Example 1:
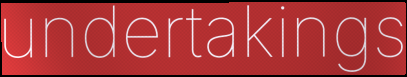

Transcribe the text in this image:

undertakings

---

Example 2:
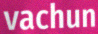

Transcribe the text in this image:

vachun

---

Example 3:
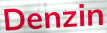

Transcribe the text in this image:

Denzin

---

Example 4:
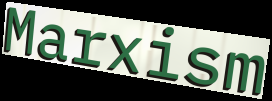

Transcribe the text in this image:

Marxism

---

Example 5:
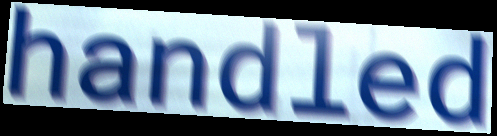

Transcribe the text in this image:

handled